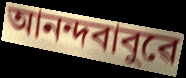
আনন্দবাবুৱে